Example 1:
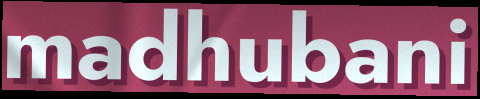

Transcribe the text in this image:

madhubani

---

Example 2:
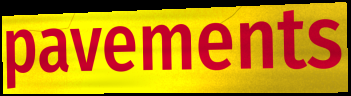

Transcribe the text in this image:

pavements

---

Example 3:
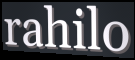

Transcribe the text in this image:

rahilo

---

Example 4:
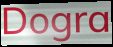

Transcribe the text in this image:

Dogra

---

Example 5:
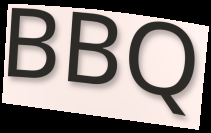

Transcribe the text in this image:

BBQ